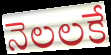
నెలలకే